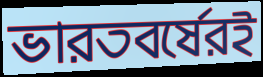
ভারতবর্ষেরই